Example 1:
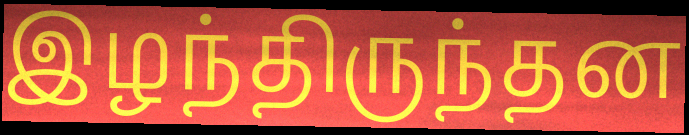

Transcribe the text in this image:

இழந்திருந்தன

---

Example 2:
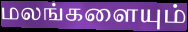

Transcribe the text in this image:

மலங்களையும்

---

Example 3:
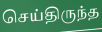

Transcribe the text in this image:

செய்திருந்த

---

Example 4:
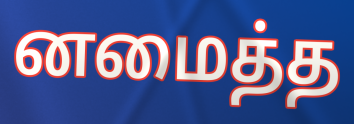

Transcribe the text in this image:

னமைத்த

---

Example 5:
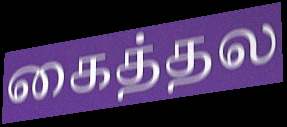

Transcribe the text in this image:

கைத்தல